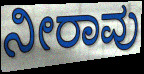
ನೀರಾವು